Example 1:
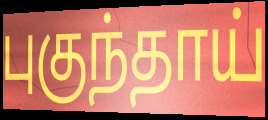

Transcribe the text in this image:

புகுந்தாய்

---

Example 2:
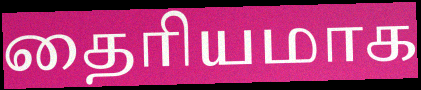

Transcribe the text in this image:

தைரியமாக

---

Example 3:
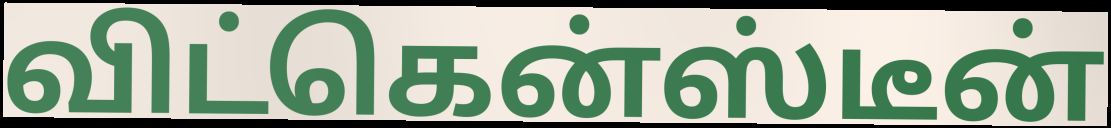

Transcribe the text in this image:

விட்கென்ஸ்டீன்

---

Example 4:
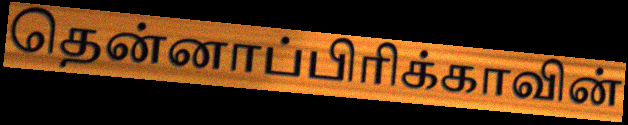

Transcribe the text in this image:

தென்னாப்பிரிக்காவின்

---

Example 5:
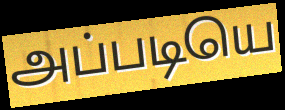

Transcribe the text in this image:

அப்படியெ